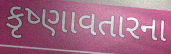
કૃષ્ણાવતારના